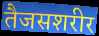
तैजसशरीर